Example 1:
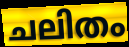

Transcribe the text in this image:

ചലിതം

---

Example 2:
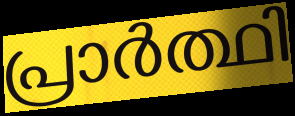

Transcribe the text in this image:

പ്രാർത്ഥി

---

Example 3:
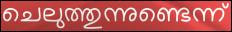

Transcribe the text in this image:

ചെലുത്തുന്നുണ്ടെന്ന്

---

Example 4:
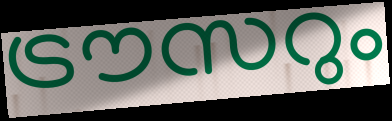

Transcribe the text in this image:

ട്രൗസറും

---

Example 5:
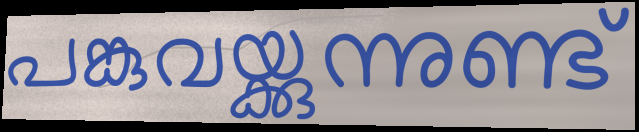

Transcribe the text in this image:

പങ്കുവയ്ക്കുന്നുണ്ട്